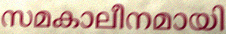
സമകാലീനമായി